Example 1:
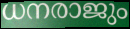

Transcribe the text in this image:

ധനരാജും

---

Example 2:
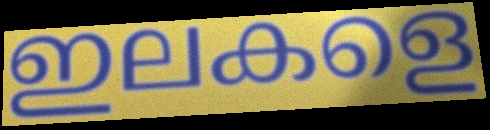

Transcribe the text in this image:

ഇലകളെ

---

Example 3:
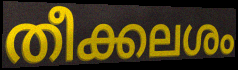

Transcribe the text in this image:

തീക്കലശം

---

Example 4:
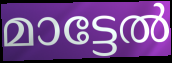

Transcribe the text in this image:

മാട്ടേൽ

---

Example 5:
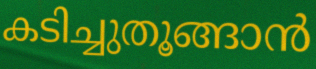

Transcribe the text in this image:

കടിച്ചുതൂങ്ങാൻ